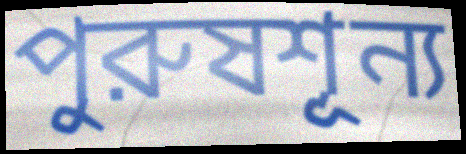
পুরুষশূন্য